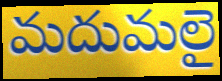
మదుమలై